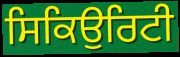
ਸਿਕਿਉਰਿਟੀ